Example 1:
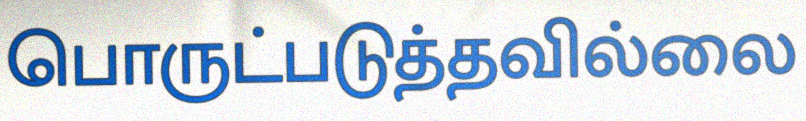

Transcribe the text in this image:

பொருட்படுத்தவில்லை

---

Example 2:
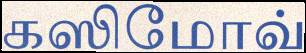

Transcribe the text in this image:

கஸிமோவ்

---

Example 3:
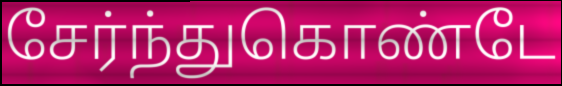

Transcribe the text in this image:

சேர்ந்துகொண்டே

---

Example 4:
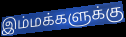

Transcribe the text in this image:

இம்மக்களுக்கு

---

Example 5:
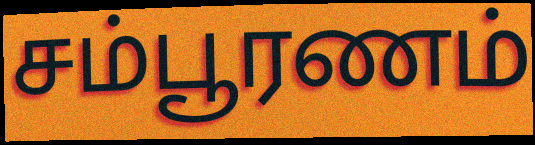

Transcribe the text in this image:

சம்பூரணம்